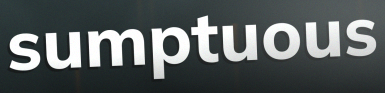
sumptuous